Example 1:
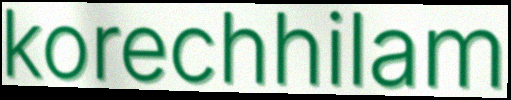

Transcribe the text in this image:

korechhilam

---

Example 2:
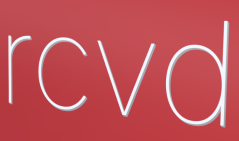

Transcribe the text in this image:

rcvd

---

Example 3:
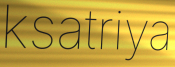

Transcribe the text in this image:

ksatriya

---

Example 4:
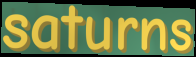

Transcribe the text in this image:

saturns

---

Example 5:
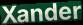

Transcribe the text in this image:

Xander